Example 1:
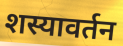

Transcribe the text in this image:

शस्यावर्तन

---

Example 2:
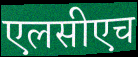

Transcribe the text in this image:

एलसीएच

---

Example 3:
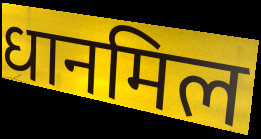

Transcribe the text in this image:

धानमिल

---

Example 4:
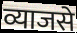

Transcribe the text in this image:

व्याजसे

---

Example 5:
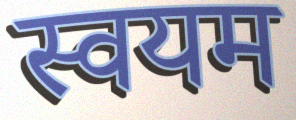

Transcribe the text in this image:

स्वयम